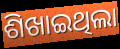
ଶିଖାଇଥିଲା